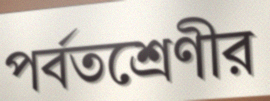
পর্বতশ্রেণীর